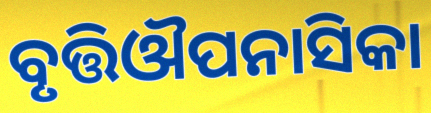
ବୃତ୍ତିଔପନାସିକା